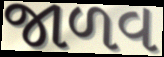
જાળવ